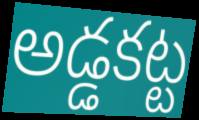
అడ్డకట్ట